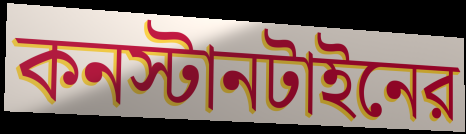
কনস্টানটাইনের